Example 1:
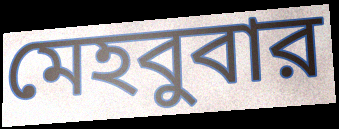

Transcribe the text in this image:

মেহবুবার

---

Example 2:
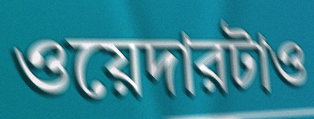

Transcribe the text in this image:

ওয়েদারটাও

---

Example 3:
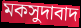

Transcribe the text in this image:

মকসুদাবাদ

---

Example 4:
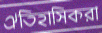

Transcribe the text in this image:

ঐতিহাসিকরা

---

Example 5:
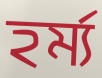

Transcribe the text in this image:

হর্ম্য